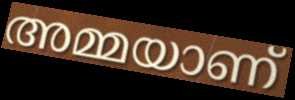
അമ്മയാണ്